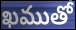
ఖముతో